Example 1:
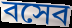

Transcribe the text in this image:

বসেব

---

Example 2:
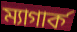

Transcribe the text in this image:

ম্যাগার্ক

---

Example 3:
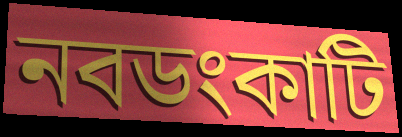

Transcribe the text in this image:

নবডংকাটি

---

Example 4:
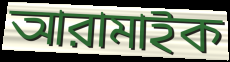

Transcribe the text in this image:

আরামাইক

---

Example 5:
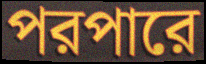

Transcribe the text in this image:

পরপারে